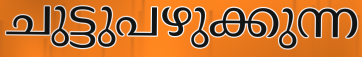
ചുട്ടുപഴുക്കുന്ന